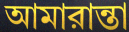
আমারান্তা